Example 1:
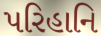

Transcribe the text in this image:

પરિહાનિ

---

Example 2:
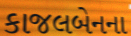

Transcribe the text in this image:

કાજલબેનના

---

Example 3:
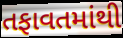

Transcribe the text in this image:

તફાવતમાંથી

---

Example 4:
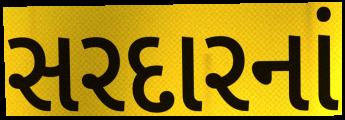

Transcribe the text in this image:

સરદારનાં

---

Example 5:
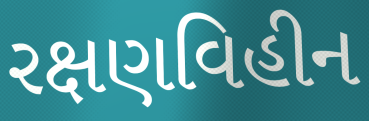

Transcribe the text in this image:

રક્ષણવિહીન